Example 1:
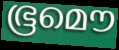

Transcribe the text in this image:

ഭൂമൌ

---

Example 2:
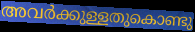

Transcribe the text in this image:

അവർക്കുള്ളതുകൊണ്ടു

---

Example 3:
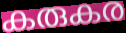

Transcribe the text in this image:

കരുകര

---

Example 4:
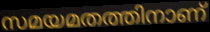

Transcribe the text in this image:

സമയമതത്തിനാണ്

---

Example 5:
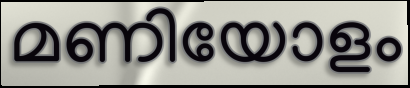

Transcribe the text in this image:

മണിയോളം